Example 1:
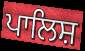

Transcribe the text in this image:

ਪਾਲਿਸ਼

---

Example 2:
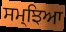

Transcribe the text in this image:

ਸਮ੍ਝਿਆ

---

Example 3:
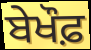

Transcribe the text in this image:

ਬੇਖੌਫ਼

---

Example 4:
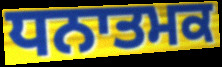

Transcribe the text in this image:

ਧਨਾਤਮਕ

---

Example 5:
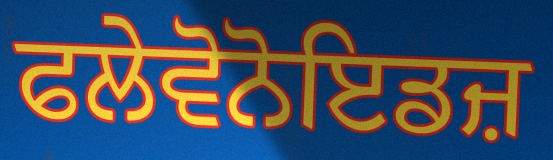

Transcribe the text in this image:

ਫਲੇਵੋਨੋਇਡਜ਼